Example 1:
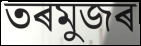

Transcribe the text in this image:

তৰমুজৰ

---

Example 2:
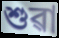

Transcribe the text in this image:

শুৱা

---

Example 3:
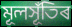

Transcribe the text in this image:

মূলসূঁতিৰ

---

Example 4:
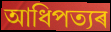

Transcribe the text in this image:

আধিপত্যৰ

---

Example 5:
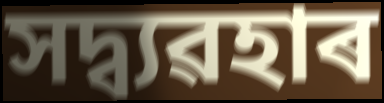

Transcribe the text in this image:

সদ্ব্যৱহাৰ